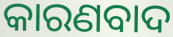
କାରଣବାଦ